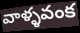
వాళ్ళవంక